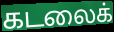
கடலைக்